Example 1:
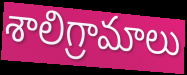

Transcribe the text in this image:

శాలిగ్రామాలు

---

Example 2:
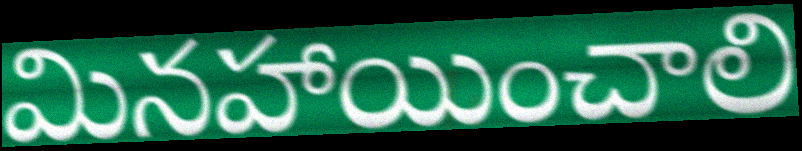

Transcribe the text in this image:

మినహాయించాలి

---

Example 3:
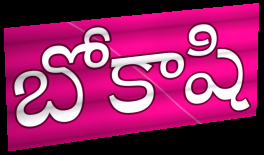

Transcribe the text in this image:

బోకాషి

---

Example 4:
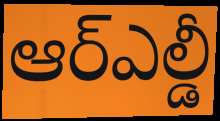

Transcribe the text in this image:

ఆర్ఎల్డీ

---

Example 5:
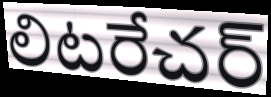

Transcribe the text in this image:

లిటరేచర్